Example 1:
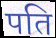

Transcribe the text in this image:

पति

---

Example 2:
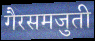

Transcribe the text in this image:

गैरसमजुती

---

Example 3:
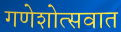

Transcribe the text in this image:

गणेशोत्सवात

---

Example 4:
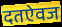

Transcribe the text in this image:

दतऐवज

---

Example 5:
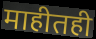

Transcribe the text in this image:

माहीतही